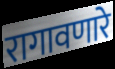
रागावणारे